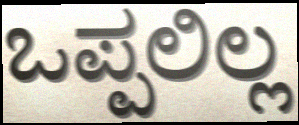
ಒಪ್ಪಲಿಲ್ಲ